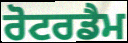
ਰੋਟਰਡੈਮ